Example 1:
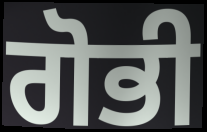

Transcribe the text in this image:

ਗੋਭੀ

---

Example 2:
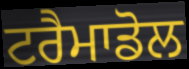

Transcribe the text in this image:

ਟਰੈਮਾਡੋਲ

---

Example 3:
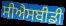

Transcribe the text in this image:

ਸੀਐਸਬੀਡੀ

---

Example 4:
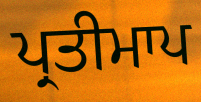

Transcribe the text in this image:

ਪ੍ਰਤੀਮਾਪ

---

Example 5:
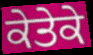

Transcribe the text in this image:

ਕੇਤੇਕੇ